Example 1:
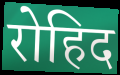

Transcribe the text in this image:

रोहिद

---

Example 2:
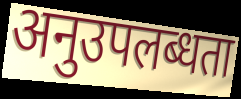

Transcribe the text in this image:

अनुउपलब्धता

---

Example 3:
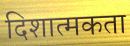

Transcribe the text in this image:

दिशात्मकता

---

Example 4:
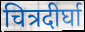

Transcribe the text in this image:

चित्रदीर्घा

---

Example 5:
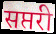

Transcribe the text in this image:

सप्तरी